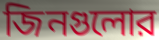
জিনগুলোর